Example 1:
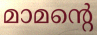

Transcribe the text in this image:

മാമന്റെ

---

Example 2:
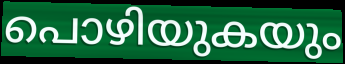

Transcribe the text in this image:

പൊഴിയുകയും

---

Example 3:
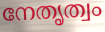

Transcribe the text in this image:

നേതൃത്വം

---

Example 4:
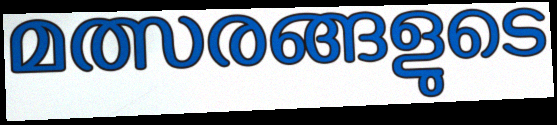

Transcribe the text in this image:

മത്സരങ്ങളുടെ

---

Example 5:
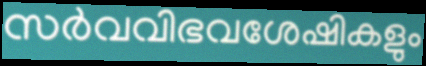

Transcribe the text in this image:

സർവവിഭവശേഷികളും